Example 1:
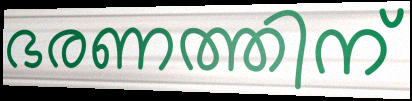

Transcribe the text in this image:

ഭരണത്തിന്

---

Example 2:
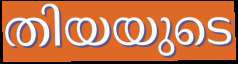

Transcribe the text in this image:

തിയയുടെ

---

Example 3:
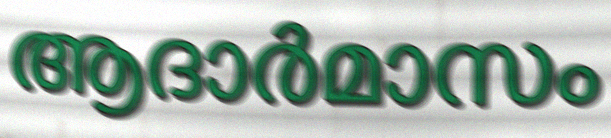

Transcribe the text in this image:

ആദാർമാസം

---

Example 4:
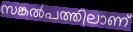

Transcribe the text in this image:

സങ്കൽപത്തിലാണ്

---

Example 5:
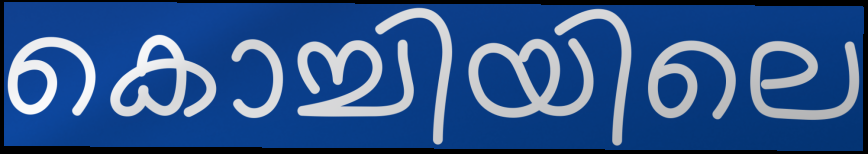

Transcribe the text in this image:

കൊച്ചിയിലെ